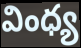
వింధ్య